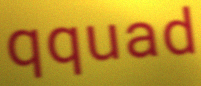
qquad